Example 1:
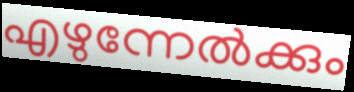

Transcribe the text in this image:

എഴുന്നേൽക്കും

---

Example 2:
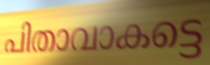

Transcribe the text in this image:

പിതാവാകട്ടെ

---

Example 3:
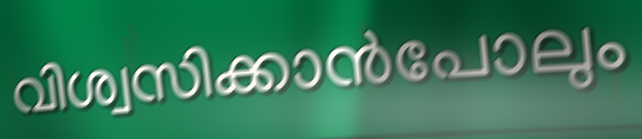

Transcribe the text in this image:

വിശ്വസിക്കാൻപോലും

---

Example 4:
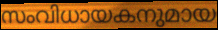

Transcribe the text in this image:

സംവിധായകനുമായ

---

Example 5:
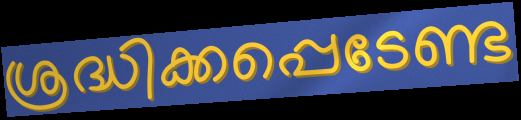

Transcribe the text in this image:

ശ്രദ്ധിക്കപ്പെടേണ്ട